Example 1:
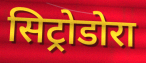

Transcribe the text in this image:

सिट्रोडोरा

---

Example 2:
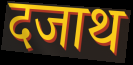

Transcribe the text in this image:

दजाथ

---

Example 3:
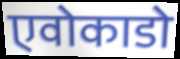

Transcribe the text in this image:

एवोकाडो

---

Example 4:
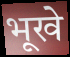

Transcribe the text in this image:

भूखे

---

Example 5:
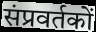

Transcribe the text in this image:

संप्रवर्तकों